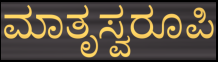
ಮಾತೃಸ್ವರೂಪಿ